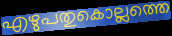
എഴുപതുകൊല്ലത്തെ